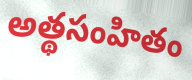
అత్థసంహితం